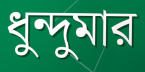
ধুন্দুমার